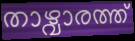
താഴ്വാരത്ത്